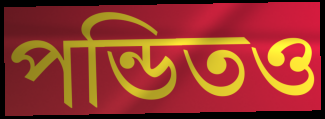
পন্ডিতও